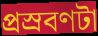
প্রস্রবণটা